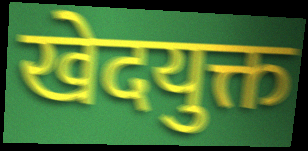
खेदयुक्त